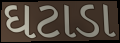
ઘટાડા